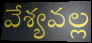
వేశ్యవల్ల